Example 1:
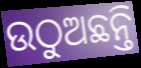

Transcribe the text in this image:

ଉଠୁଅଛନ୍ତି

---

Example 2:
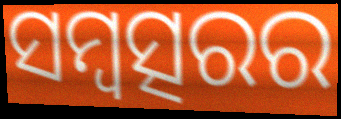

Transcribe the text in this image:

ସମ୍ବତ୍ସରର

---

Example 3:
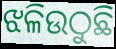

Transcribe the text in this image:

ଝଳିଉଠୁଛି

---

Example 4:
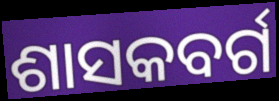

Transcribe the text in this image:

ଶାସକବର୍ଗ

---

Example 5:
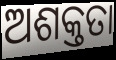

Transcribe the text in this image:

ଅଶକ୍ତତା